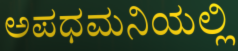
ಅಪಧಮನಿಯಲ್ಲಿ